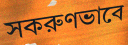
সকরুণভাবে